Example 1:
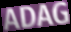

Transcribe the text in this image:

ADAG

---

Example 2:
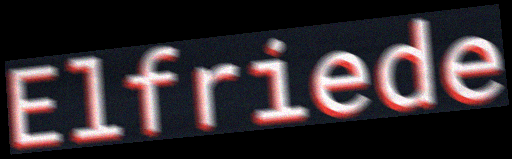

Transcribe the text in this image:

Elfriede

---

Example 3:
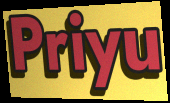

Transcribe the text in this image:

Priyu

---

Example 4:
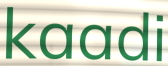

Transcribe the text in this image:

kaadi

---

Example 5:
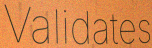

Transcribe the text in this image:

Validates